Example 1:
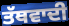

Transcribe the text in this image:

ਤੱਥਵਾਦੀ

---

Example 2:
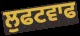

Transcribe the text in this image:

ਲੁਫਟਵਾਫ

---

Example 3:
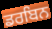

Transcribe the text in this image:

ਡਰਬਿਨ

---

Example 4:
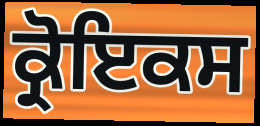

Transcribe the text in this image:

ਕ੍ਰੋਇਕਸ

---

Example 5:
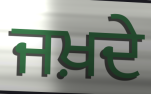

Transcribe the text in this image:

ਜਖ਼ਦੇ